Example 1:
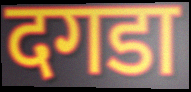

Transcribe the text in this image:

दगडा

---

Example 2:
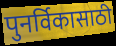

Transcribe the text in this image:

पुनर्विकासाठी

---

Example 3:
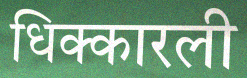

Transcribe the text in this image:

धिक्कारली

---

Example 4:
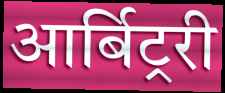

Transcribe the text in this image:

आर्बिट्ररी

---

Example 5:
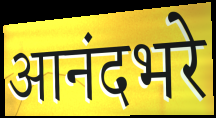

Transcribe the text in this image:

आनंदभरे